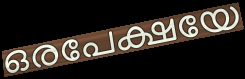
ഒരപേക്ഷയേ